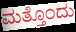
ಮತ್ತೊಂದು